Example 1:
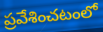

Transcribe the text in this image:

ప్రవేశించటంలో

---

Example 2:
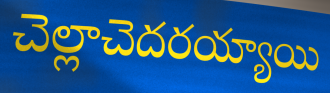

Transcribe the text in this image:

చెల్లాచెదరయ్యాయి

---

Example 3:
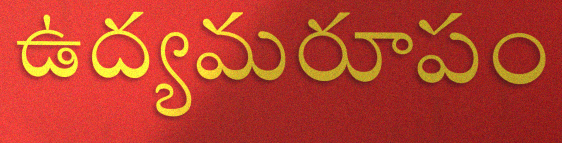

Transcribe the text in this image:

ఉద్యమరూపం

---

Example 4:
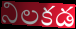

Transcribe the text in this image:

నిలకడ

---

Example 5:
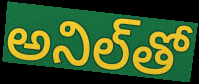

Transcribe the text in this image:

అనిల్‌తో